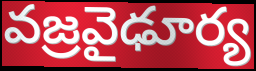
వజ్రవైఢూర్య